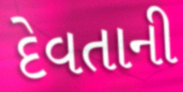
દેવતાની